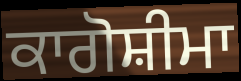
ਕਾਗੋਸ਼ੀਮਾ